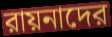
রায়নাদের